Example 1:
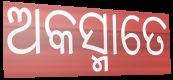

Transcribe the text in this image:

ଅକସ୍ମାତେ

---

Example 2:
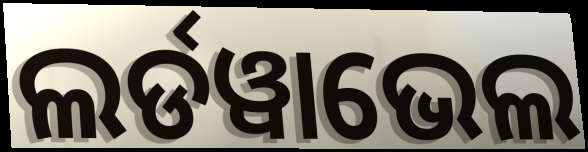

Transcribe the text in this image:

ଲର୍ଡୱାଭେଲ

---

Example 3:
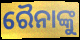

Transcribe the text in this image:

ରୈନାଙ୍କୁ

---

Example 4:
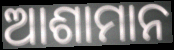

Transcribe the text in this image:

ଆଶାମାନ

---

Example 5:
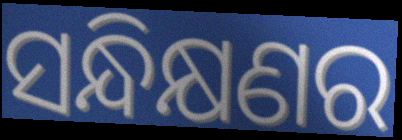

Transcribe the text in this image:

ସନ୍ଧିକ୍ଷଣର